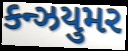
કન્ઝયુમર